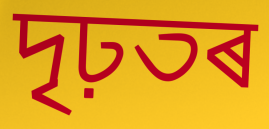
দৃঢ়তৰ